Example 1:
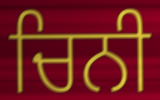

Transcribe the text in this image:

ਚਿਨੀ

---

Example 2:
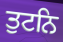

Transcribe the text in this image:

ਤੁਟਨਿ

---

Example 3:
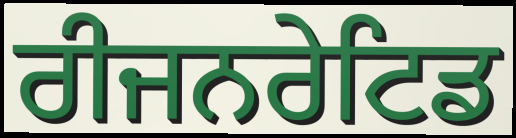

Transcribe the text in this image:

ਰੀਜਨਰੇਟਿਡ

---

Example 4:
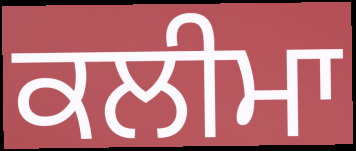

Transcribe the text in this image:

ਕਲੀਮਾ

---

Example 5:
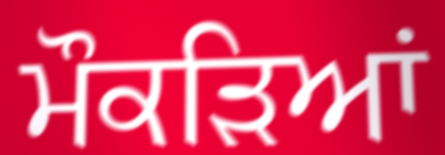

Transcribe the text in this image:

ਮੌਕੜਿਆਂ